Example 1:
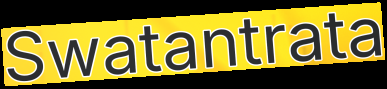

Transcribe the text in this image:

Swatantrata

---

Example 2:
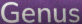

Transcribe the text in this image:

Genus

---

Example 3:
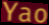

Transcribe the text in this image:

Yao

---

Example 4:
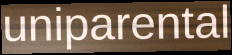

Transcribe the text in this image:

uniparental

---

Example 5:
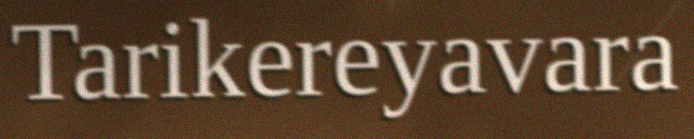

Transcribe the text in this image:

Tarikereyavara